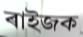
ৰাইজক